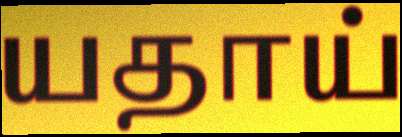
யதாய்